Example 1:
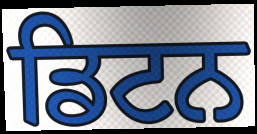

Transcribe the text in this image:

ਡਿਟਨ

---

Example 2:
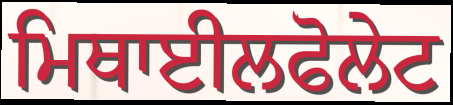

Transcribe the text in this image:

ਮਿਥਾਈਲਫੋਲੇਟ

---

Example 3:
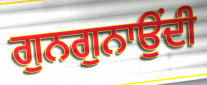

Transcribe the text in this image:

ਗੁਨਗੁਨਾਉਂਦੀ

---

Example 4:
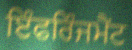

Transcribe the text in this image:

ਇੰਫਰਿੰਜਮੈਂਟ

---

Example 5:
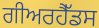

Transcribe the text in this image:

ਗੀਅਰਹੈੱਡਸ